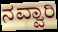
ನವ್ವಾರಿ